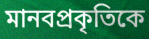
মানবপ্রকৃতিকে